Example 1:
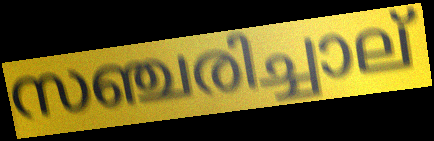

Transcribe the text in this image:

സഞ്ചരിച്ചാല്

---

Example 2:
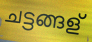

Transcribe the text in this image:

ചട്ടങ്ങള്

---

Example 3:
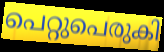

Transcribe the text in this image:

പെറ്റുപെരുകി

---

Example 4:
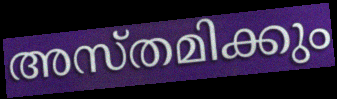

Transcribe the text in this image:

അസ്തമിക്കും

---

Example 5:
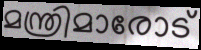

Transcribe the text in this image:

മന്ത്രിമാരോട്